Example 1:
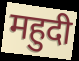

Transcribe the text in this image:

महुदी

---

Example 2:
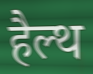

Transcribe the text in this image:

हैल्थ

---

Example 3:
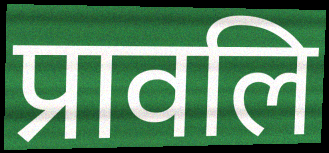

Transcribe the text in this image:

प्रावलि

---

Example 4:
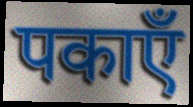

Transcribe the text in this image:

पकाएँ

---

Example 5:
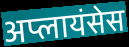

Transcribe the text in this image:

अप्लायंसेस